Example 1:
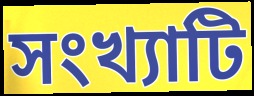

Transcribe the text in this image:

সংখ্যাটি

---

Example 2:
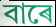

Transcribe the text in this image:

বাৰে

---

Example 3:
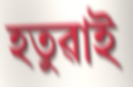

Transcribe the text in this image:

হতুৱাই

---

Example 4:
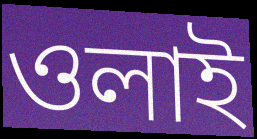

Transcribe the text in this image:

ওলাই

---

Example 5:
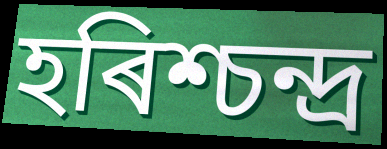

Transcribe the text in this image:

হৰিশ্চন্দ্ৰ